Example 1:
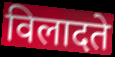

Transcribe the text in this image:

विलादते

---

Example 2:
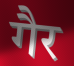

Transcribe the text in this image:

गैर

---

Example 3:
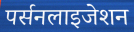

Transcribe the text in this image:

पर्सनलाइजेशन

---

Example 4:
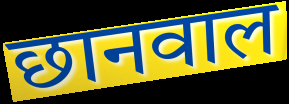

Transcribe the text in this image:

छानवाल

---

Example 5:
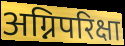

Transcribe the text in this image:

अग्निपरिक्षा